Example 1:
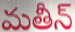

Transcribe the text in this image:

మతీన్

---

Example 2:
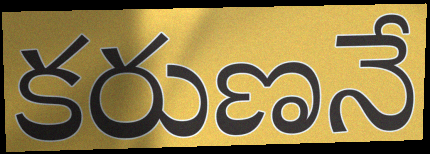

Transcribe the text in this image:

కరుణనే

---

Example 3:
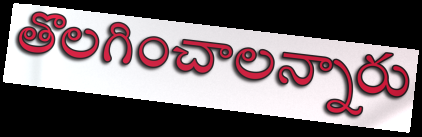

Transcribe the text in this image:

తొలగించాలన్నారు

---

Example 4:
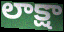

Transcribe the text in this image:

లాక్షా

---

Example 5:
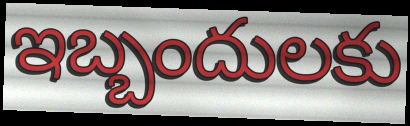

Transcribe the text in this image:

ఇబ్బందులకు